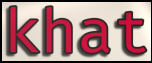
khat